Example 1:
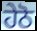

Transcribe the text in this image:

ਹੇਠੋ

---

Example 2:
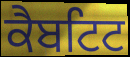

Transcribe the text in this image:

ਕੈਬਟਿਟ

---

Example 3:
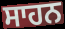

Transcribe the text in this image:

ਸਾਹਨ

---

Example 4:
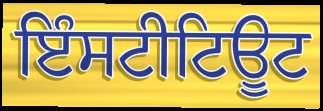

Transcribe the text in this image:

ਇੰਸਟੀਟਿਊਟ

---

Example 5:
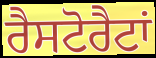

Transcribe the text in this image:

ਰੈਸਟੋਰੈਟਾਂ